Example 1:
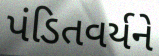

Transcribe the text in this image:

પંડિતવર્યને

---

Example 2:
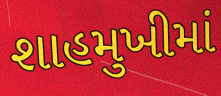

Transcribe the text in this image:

શાહમુખીમાં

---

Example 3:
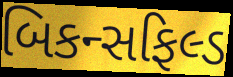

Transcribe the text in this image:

બિકન્સફિલ્ડ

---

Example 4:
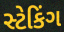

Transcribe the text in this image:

સ્ટેકિંગ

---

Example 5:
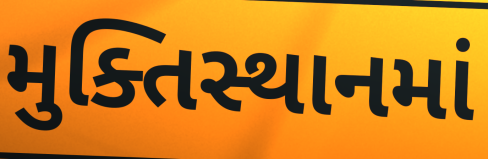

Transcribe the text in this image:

મુક્તિસ્થાનમાં